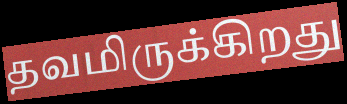
தவமிருக்கிறது